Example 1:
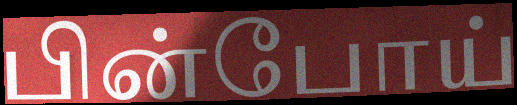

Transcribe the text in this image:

பின்போய்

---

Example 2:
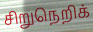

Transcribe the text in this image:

சிறுநெறிக்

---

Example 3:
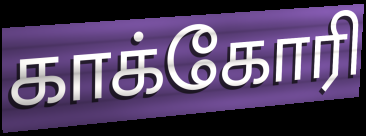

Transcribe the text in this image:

காக்கோரி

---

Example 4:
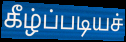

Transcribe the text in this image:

கீழ்ப்படியச்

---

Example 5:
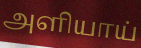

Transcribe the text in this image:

அளியாய்